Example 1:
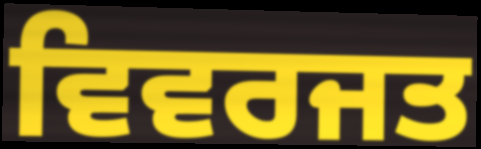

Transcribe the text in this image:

ਵਿਵਰਜਤ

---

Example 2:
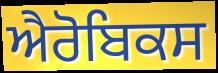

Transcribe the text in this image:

ਐਰੋਬਿਕਸ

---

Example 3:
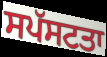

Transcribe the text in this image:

ਸਪੱਸਟਤਾ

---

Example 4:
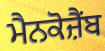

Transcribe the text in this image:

ਮੈਨਕੋਜ਼ੈਂਬ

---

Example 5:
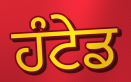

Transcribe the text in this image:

ਹੰਟੇਡ